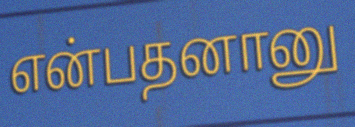
என்பதனானு